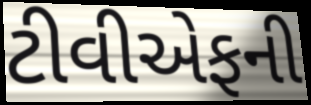
ટીવીએફની